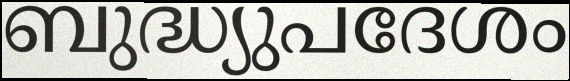
ബുദ്ധ്യുപദേശം